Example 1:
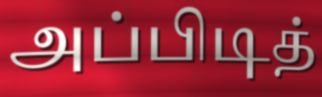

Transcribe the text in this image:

அப்பிடித்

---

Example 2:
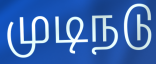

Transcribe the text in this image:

முடிநடு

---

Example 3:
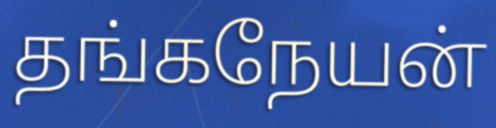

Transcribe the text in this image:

தங்கநேயன்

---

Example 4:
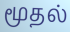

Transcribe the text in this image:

மூதல்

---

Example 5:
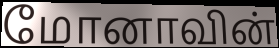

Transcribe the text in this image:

மோனாவின்